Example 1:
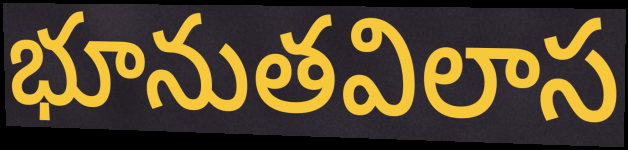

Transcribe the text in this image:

భూనుతవిలాస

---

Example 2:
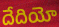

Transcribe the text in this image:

దేదియో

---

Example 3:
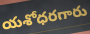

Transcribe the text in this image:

యశోధరగారు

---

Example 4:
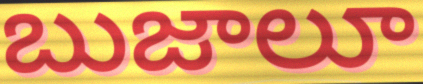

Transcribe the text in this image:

బుజాలూ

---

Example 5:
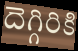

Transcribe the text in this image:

దెగ్గిరికి